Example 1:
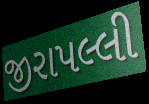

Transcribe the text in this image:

જીરાપલ્લી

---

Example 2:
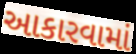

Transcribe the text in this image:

આકારવામાં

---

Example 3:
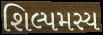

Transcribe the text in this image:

શિલ્પમસ્ય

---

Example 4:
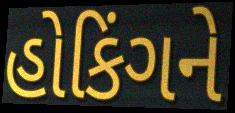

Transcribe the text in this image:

હોકિંગને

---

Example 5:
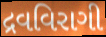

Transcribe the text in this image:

દ્રવવિરાગી